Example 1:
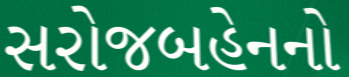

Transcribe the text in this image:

સરોજબહેનનો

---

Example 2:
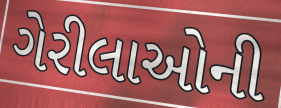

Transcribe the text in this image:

ગેરીલાઓની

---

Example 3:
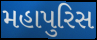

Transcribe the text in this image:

મહાપુરિસ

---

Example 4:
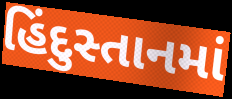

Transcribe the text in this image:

હિંદુસ્તાનમાં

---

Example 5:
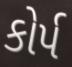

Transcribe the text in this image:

કોર્પ